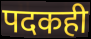
पदकही